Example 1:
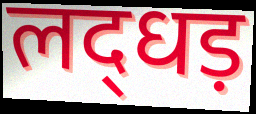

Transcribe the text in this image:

लद्धड़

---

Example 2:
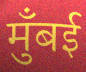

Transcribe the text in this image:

मुँबई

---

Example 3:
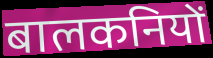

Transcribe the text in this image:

बालकनियों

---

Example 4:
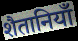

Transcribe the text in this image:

शैतानियाँ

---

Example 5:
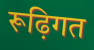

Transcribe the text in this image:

रूढ़िगत